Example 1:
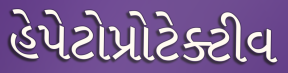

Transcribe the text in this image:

હેપેટોપ્રોટેક્ટીવ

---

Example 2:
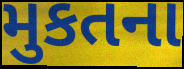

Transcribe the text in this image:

મુકતના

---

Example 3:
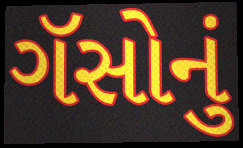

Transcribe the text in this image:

ગૅસોનું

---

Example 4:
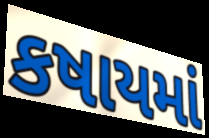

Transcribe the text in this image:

કષાયમાં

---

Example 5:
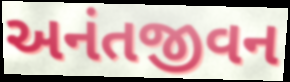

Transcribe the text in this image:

અનંતજીવન